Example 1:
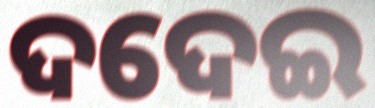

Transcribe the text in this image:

ଦଦେଇ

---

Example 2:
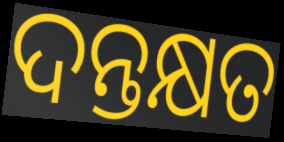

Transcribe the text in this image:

ଦନ୍ତକ୍ଷତ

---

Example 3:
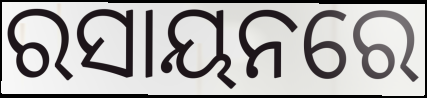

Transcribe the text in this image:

ରସାୟନରେ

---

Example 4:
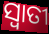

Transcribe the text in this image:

ସ୍ୱାତୀ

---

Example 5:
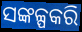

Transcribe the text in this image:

ସଙ୍କଳ୍ପକରି